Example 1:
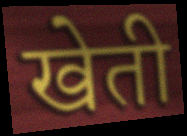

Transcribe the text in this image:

खेती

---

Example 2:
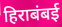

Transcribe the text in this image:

हिराबंबई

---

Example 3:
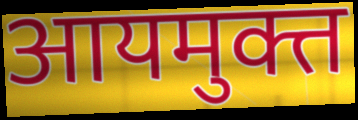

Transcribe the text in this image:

आयमुक्त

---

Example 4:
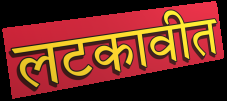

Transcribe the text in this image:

लटकावीत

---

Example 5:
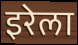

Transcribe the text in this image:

इरेला